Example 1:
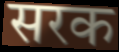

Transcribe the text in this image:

सरक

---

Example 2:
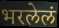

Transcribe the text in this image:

भरलेलं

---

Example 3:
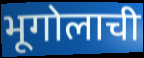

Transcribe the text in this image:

भूगोलाची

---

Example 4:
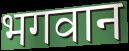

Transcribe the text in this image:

भगवान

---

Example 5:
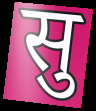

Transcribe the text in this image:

सु